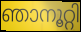
ഞാനൂറ്റി